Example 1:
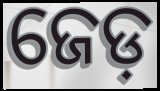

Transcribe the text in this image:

ଜେଡ଼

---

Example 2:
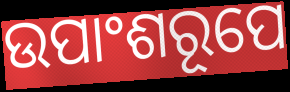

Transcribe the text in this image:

ଉପାଂଶରୂପେ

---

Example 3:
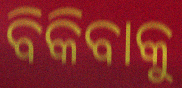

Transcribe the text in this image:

ବିକିବାକୁ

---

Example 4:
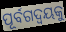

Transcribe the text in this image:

ପୂର୍ବଗଦ୍ଵୟକୁ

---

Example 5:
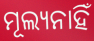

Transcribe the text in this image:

ମୂଲ୍ୟନାହିଁ